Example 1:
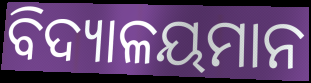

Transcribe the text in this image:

ବିଦ୍ୟାଳୟମାନ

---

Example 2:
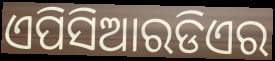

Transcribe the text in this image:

ଏପିସିଆରଡିଏର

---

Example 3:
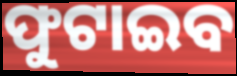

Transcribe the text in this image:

ଫୁଟାଇବ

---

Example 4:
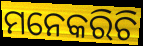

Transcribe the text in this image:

ମନେକରିଚି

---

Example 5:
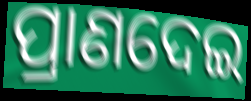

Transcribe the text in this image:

ପ୍ରାଣଦେଇ